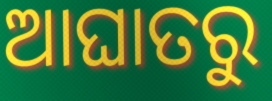
ଆଘାତରୁ